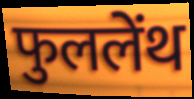
फुललेंथ